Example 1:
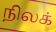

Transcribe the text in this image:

நிலக்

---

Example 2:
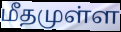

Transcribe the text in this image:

மீதமுள்ள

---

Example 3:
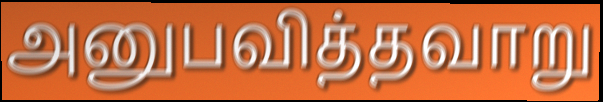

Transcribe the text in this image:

அனுபவித்தவாறு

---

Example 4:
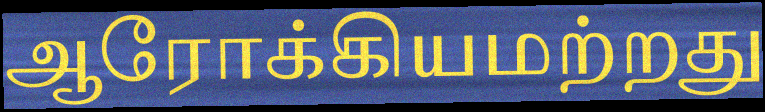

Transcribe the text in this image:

ஆரோக்கியமற்றது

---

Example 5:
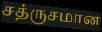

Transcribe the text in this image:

சத்ருசமான